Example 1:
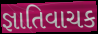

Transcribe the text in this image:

જ્ઞાતિવાચક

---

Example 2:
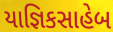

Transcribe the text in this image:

યાજ્ઞિકસાહેબ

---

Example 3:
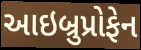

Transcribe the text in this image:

આઇબ્રુપ્રોફેન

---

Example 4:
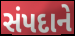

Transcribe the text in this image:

સંપદાને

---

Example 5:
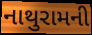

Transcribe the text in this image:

નાથુરામની